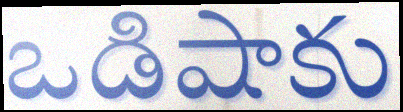
ఒడిషాకు